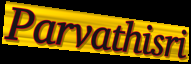
Parvathisri